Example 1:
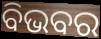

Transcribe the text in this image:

ବିଭବର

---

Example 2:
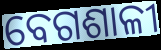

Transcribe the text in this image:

ବେଗଶାଳୀ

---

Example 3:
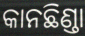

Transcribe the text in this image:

କାନଛିଣ୍ଡା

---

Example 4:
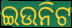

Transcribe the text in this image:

ଇଉନିଟ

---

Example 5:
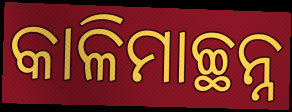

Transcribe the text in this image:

କାଳିମାଚ୍ଛନ୍ନ